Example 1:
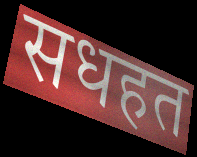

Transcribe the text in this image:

सधहत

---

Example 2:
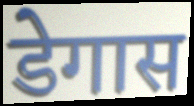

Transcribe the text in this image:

डेगास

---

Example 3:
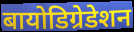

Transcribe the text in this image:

बायोडिग्रेडेशन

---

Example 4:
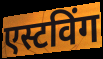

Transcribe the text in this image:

एस्टविंग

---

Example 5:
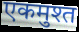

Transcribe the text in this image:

एकमुश्‍त